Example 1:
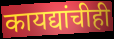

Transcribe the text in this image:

कायद्यांचीही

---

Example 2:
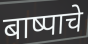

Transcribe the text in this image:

बाष्पाचे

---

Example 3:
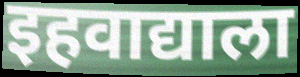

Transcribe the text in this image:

इहवाद्याला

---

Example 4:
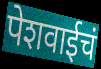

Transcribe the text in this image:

पेशवाईचं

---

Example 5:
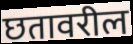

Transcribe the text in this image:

छतावरील